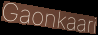
Gaonkaari